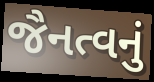
જૈનત્વનું